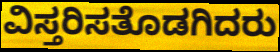
ವಿಸ್ತರಿಸತೊಡಗಿದರು